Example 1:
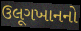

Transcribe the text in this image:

ઉલૂગખાનનો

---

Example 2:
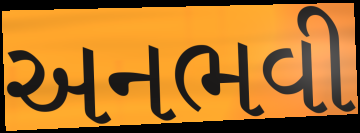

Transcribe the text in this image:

અનભવી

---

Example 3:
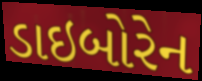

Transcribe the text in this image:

ડાઇબોરેન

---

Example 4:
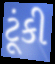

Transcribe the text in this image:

ટૂંકી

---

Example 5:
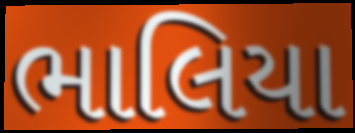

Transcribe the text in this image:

ભાલિયા